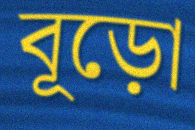
বূড়ো